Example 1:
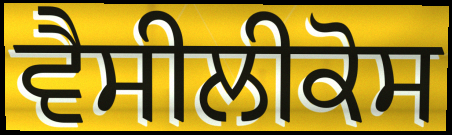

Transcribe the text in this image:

ਵੈਸੀਲੀਕੋਸ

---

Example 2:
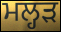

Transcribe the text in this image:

ਮਲ੍ਹੜ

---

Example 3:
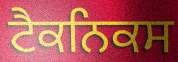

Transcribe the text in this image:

ਟੈਕਨਿਕਸ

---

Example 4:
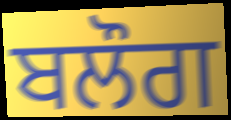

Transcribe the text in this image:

ਬਲੌਗ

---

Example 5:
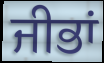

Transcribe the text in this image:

ਜੀਭਾਂ